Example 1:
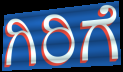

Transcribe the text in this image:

ಗಿರಿಗೆ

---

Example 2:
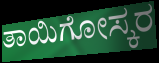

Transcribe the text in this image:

ತಾಯಿಗೋಸ್ಕರ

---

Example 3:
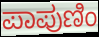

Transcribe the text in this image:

ಪಾಪುಣಿಂ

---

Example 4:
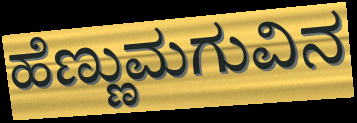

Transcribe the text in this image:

ಹೆಣ್ಣುಮಗುವಿನ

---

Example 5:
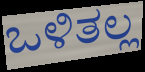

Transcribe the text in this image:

ಒಳಿತಲ್ಲ